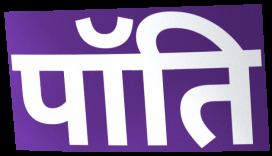
पॉति